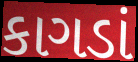
કાગડાં